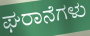
ಘರಾನೆಗಳು